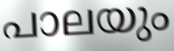
പാലയും